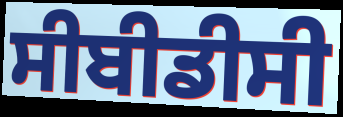
ਸੀਬੀਡੀਸੀ